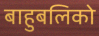
बाहुबलिको